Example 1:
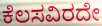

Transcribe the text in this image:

ಕೆಲಸವಿರದೇ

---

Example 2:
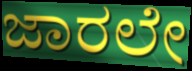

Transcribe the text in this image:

ಜಾರಲೇ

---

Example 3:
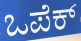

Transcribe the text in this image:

ಒಪೆಕ್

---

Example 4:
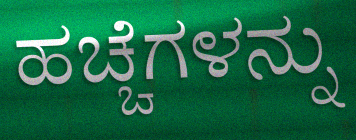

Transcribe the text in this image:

ಹಚ್ಚೆಗಳನ್ನು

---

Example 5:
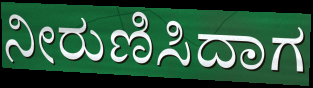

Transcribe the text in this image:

ನೀರುಣಿಸಿದಾಗ